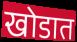
खोडात